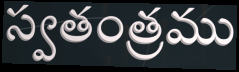
స్వతంత్రము